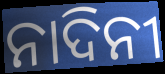
ନାଦିନୀ